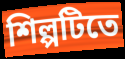
শিল্পটিতে